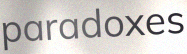
paradoxes